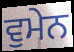
ਵੁਮੇਨ